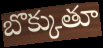
బొక్కుతూ